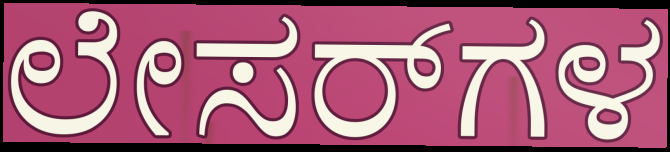
ಲೇಸರ್‌ಗಳ